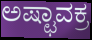
ಅಷ್ಟಾವಕ್ರ